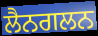
ਲੈਨਗਲਨ